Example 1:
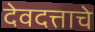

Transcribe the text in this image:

देवदत्ताचे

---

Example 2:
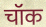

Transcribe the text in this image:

चॉक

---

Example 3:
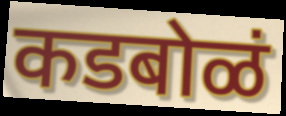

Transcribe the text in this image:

कडबोळं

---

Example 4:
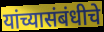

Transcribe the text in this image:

यांच्यासंबंधीचे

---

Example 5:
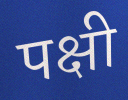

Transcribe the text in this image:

पक्षी